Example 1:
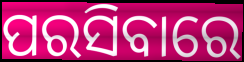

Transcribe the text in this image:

ପରସିବାରେ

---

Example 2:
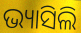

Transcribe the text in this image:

ଭ୍ୟାସିଲି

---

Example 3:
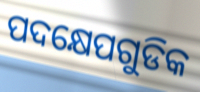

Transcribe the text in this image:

ପଦକ୍ଷେପଗୁଡିକ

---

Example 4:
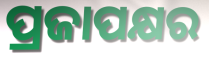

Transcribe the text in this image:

ପ୍ରଜାପକ୍ଷର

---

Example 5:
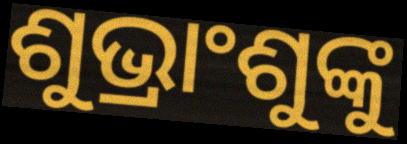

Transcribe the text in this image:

ଶୁଭ୍ରାଂଶୁଙ୍କୁ